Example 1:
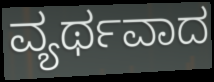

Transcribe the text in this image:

ವ್ಯರ್ಥವಾದ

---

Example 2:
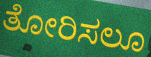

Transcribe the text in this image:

ತೋರಿಸಲೂ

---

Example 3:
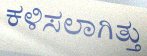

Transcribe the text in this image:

ಕಳಿಸಲಾಗಿತ್ತು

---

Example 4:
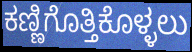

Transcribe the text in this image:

ಕಣ್ಣಿಗೊತ್ತಿಕೊಳ್ಳಲು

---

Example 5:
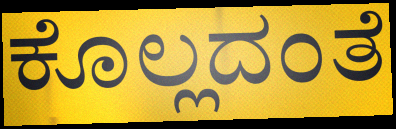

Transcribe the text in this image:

ಕೊಲ್ಲದಂತೆ